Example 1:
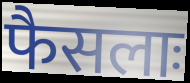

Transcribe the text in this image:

फैसलाः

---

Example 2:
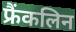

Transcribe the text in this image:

फ्रैंकलिन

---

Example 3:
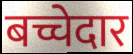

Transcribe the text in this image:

बच्चेदार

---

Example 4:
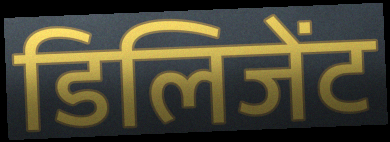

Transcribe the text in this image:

डिलिजेंट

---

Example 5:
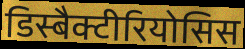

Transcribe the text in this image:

डिस्बैक्टीरियोसिस